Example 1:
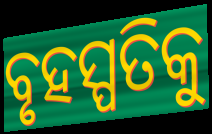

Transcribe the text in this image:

ବୃହସ୍ପତିକୁ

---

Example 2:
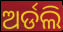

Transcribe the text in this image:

ଅର୍ଡଲି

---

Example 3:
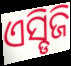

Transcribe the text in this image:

ଏସ୍ଡିଜି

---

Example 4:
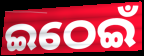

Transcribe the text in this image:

ଇଠେଇଁ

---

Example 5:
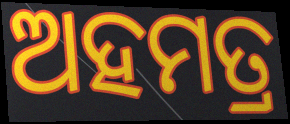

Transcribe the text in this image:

ଅହମତ୍ର